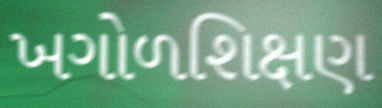
ખગોળશિક્ષણ